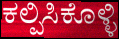
ಕಲ್ಪಿಸಿಕೊಳ್ಳಿ